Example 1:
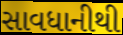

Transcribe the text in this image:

સાવધાનીથી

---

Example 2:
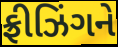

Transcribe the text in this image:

ફ્રીઝિંગને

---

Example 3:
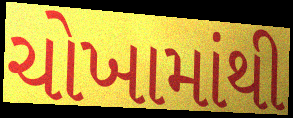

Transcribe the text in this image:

ચોખામાંથી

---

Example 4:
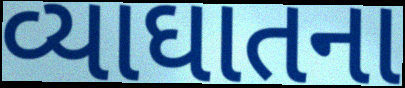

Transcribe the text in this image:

વ્યાઘાતના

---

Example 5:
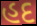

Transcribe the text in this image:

હદ